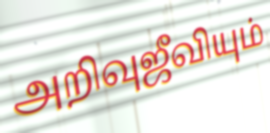
அறிவுஜீவியும்